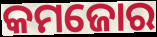
କମଜୋର